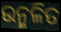
ଉନ୍ମଳିତ